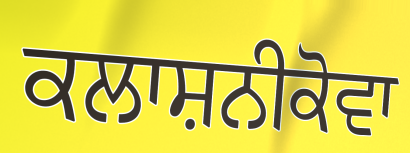
ਕਲਾਸ਼ਨੀਕੋਵਾ